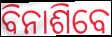
ବିନାଶିବେ